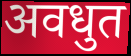
अवधुत